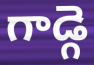
గాడ్గె